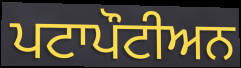
ਪਟਾਪੌਟੀਅਨ